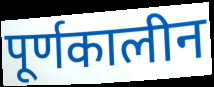
पूर्णकालीन